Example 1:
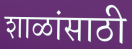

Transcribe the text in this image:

शाळांसाठी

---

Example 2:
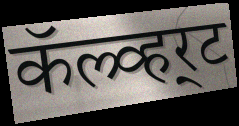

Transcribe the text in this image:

कॅल्व्हर्ट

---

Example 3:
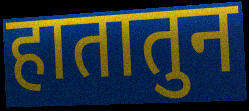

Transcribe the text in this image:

हातातुन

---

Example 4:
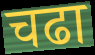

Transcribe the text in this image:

चढा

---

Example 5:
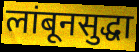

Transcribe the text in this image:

लांबूनसुद्धा